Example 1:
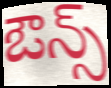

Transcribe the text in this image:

ఔన్స్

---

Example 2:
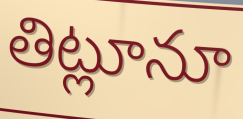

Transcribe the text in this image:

తిట్లూనూ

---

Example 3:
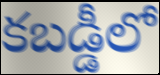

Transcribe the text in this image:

కబడ్డీలో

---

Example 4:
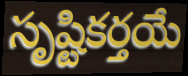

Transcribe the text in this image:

సృష్టికర్తయే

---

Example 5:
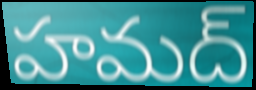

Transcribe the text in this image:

హమద్